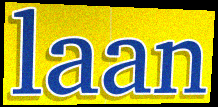
laan